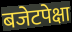
बजेटपेक्षा